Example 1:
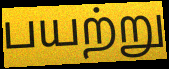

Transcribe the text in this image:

பயற்று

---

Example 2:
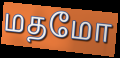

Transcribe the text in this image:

மதமோ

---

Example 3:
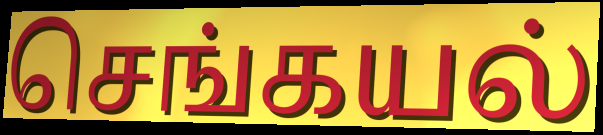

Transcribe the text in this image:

செங்கயல்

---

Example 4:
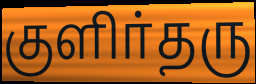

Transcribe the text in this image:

குளிர்தரு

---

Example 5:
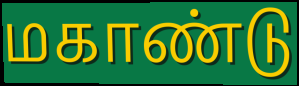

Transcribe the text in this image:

மகாண்டு